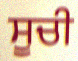
ਸੂਚੀ